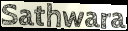
Sathwara